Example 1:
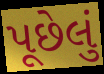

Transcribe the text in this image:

પૂછેલું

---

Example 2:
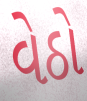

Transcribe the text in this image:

વેઠો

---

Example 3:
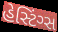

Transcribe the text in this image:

હેસ્ટિંગ્સ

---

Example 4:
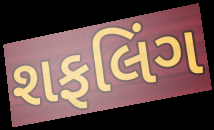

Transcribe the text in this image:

શફલિંગ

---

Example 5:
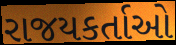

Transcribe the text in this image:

રાજયકર્તાઓ